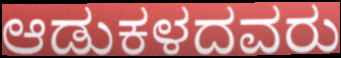
ಆಡುಕಳದವರು